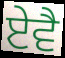
ਏਵੈ